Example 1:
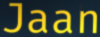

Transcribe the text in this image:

Jaan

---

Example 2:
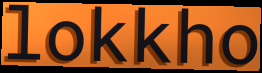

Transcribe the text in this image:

lokkho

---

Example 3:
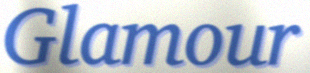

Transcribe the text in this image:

Glamour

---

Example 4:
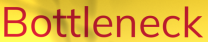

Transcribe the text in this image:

Bottleneck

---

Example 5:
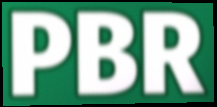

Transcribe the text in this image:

PBR